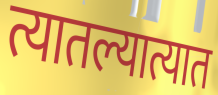
त्यातल्यात्यात